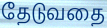
தேடுவதை